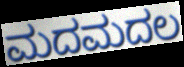
ಮದಮದಲ